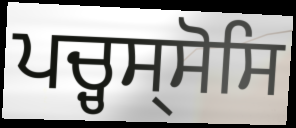
ਪਚ੍ਚਸ੍ਸੋਸਿ